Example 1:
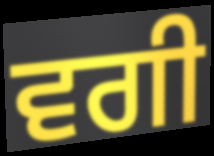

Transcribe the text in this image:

ਵਗੀ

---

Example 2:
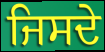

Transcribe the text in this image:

ਜਿਸਦੇ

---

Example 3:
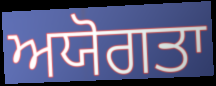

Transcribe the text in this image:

ਅਯੋਗਤਾ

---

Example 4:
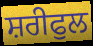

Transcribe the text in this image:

ਸ਼ਰੀਫੁਲ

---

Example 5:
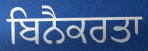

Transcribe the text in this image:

ਬਿਨੈਕਰਤਾ